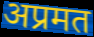
अप्रमत